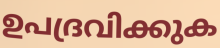
ഉപദ്രവിക്കുക